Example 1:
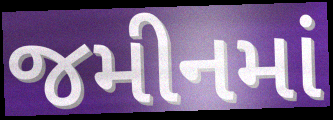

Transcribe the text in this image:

જમીનમાં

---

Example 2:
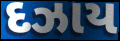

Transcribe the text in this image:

દઝાય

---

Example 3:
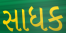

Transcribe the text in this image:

સાધક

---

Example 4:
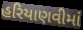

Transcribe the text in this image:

હરિયાણવીમાં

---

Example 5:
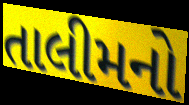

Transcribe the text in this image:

તાલીમનો